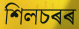
শিলচৰৰ